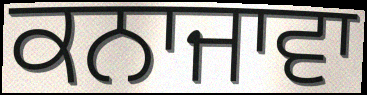
ਕਨਾਜਾਵਾ